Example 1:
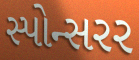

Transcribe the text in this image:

સ્પોન્સરર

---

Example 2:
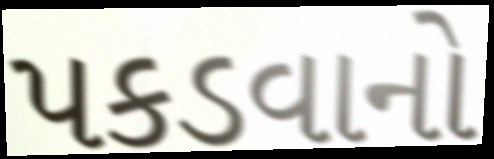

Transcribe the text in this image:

પકડવાનો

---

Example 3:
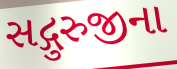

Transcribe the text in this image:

સદ્ગુરુજીના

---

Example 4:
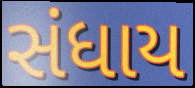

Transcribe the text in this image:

સંધાય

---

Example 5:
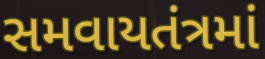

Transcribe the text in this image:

સમવાયતંત્રમાં